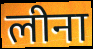
लीना